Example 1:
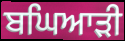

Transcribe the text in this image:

ਬਘਿਆੜੀ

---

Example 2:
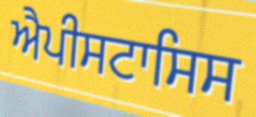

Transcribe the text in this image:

ਐਪੀਸਟਾਸਿਸ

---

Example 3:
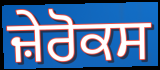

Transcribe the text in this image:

ਜ਼ੇਰੋਕਸ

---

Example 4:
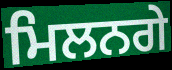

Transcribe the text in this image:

ਮਿਲਨਗੇ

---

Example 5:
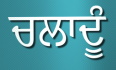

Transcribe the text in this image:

ਚਲਾਦੂੰ